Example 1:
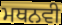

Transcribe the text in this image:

ਮਥਨਵੀ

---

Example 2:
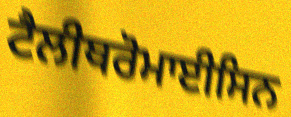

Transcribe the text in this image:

ਟੈਲੀਥਰੋਮਾਈਸਿਨ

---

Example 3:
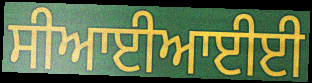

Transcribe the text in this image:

ਸੀਆਈਆਈਈ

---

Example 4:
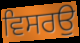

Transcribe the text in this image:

ਵਿਸਰਉ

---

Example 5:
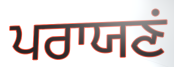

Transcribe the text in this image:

ਪਰਾਯਣਂ